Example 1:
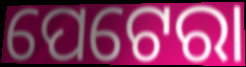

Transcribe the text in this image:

ପେଟେରା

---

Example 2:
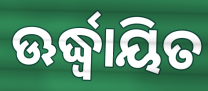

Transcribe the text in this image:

ଊର୍ଦ୍ଧ୍ୱାୟିତ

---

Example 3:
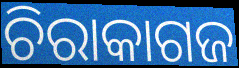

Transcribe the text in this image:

ଚିରାକାଗଜ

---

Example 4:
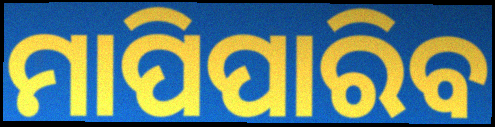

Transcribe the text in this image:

ମାପିପାରିବ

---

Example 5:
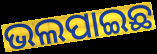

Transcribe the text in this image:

ଭଲପାଇଛ